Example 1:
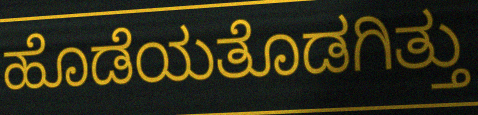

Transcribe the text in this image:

ಹೊಡೆಯತೊಡಗಿತ್ತು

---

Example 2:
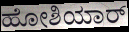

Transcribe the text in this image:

ಹೋಶಿಯಾರ್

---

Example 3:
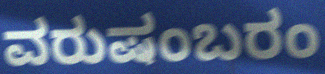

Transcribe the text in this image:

ವರುಷಂಬರಂ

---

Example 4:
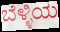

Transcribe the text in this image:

ಬೆಳ್ಳಿಯ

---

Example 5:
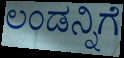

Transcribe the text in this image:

ಲಂಡನ್ನಿಗೆ